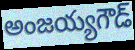
అంజయ్యగౌడ్